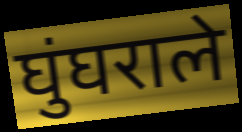
घुंघराले